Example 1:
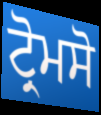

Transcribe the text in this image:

ਟ੍ਰੋਮਸੋ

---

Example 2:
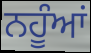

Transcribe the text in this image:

ਨਹੂੰਆਂ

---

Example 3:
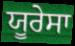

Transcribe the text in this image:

ਯੂਰੇਸਾ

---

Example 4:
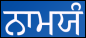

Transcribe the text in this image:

ਨਾਮਯੰ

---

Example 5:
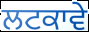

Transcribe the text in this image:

ਲਟਕਾਵੇ